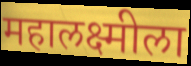
महालक्ष्मीला